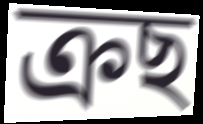
ক্ৰছ